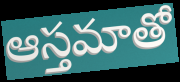
ఆస్తమాతో